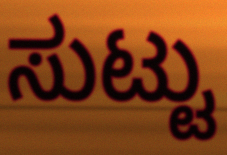
ಸುಟ್ಟು